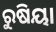
ରୁଷିୟା